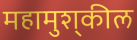
महामुश्कील